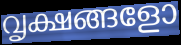
വൃക്ഷങ്ങളോ